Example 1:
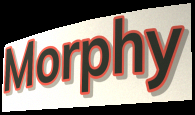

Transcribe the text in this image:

Morphy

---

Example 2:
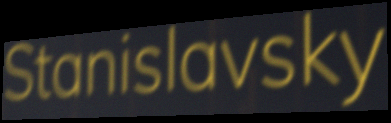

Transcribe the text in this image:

Stanislavsky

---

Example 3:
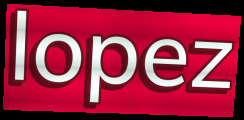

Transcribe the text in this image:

lopez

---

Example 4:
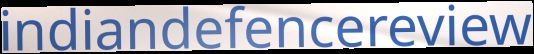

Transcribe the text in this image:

indiandefencereview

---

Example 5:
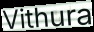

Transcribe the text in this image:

Vithura